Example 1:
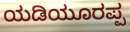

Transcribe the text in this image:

ಯಡಿಯೂರಪ್ಪ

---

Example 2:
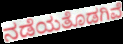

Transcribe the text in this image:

ನಡೆಯತೊಡಗಿವೆ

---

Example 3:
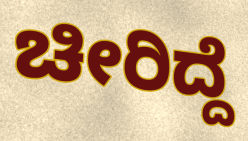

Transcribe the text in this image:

ಚೀರಿದ್ದೆ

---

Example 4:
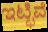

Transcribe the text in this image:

ಇಟ್ಟಿವೆ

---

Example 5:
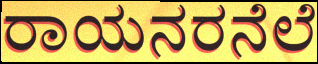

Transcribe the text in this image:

ರಾಯನರನೆಲೆ